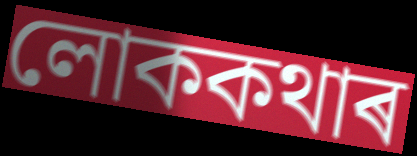
লোককথাৰ